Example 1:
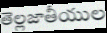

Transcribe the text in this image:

తెల్లజాతీయుల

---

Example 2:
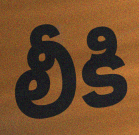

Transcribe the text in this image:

లీకి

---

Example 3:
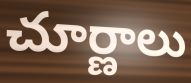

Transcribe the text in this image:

చూర్ణాలు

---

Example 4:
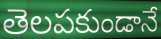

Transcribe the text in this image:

తెలపకుండానే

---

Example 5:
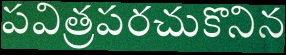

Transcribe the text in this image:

పవిత్రపరచుకొనిన